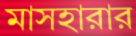
মাসহারার